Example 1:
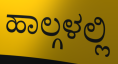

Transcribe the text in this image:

ಹಾಲ್ಗಳಲ್ಲಿ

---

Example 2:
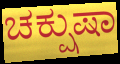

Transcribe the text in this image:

ಚಕ್ಷುಷಾ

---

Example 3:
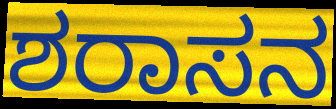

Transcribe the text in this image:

ಶರಾಸನ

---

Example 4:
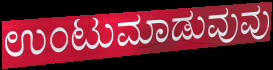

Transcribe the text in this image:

ಉಂಟುಮಾಡುವುವು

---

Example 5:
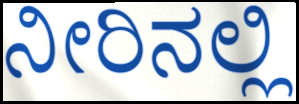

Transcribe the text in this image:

ನೀರಿನಲ್ಲಿ